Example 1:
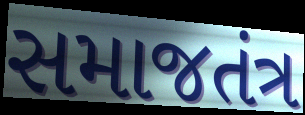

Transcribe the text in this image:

સમાજતંત્ર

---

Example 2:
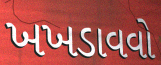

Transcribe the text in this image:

ખખડાવવો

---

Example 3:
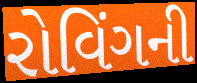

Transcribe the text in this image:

રોવિંગની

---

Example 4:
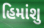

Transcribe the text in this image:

હિમાંશુ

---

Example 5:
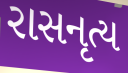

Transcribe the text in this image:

રાસનૃત્ય